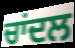
ਚਾਂਦਲ